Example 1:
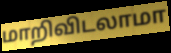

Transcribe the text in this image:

மாறிவிடலாமா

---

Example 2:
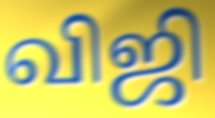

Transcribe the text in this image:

விஜி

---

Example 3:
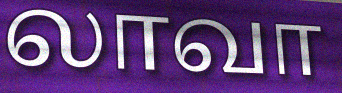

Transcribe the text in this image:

லாவா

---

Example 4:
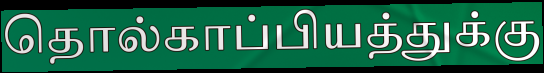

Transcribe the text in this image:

தொல்காப்பியத்துக்கு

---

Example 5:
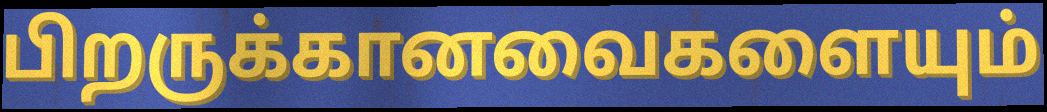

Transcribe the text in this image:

பிறருக்கானவைகளையும்